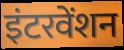
इंटरवेंशन